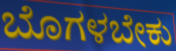
ಬೊಗಳಬೇಕು